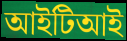
আইটিআই